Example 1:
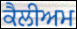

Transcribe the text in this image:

ਕੈਲੀਅਮ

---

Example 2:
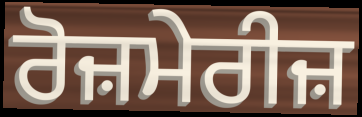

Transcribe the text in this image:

ਰੋਜ਼ਮੇਰੀਜ਼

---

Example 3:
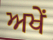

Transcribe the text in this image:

ਅਖੇਂ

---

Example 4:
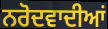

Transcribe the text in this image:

ਨਰੋਦਵਾਦੀਆਂ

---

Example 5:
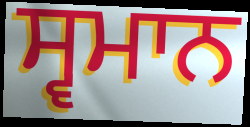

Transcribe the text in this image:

ਸ੍ਵਮਾਨ